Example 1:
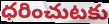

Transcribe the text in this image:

ధరించుటకు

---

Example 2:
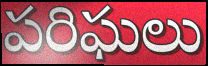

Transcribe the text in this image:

పరిఘలు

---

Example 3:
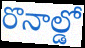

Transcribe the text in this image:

రొనాల్డో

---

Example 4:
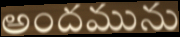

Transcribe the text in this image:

అందమును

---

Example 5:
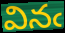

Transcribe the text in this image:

వినఁ